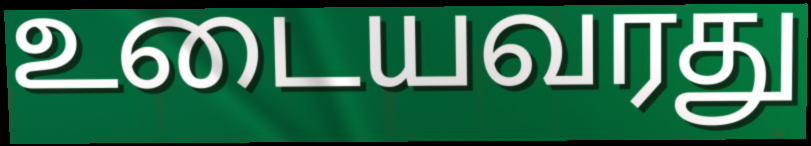
உடையவரது